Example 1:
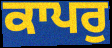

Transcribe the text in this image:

ਕਾਪਰੁ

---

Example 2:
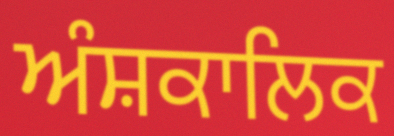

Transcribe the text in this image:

ਅੰਸ਼ਕਾਲਿਕ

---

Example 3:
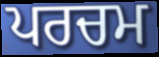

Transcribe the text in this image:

ਪਰਚਮ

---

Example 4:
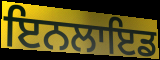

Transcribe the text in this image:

ਇਨਲਾਇਡ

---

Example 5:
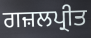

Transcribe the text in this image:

ਗਜ਼ਲਪ੍ਰੀਤ